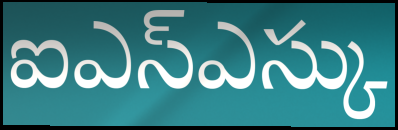
ఐఎస్ఎస్కు